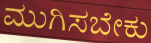
ಮುಗಿಸಬೇಕು